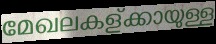
മേഖലകള്ക്കായുള്ള